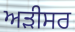
ਅੜੀਸਰ